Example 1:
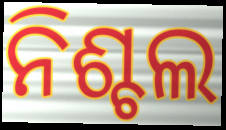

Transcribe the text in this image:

ନିଶ୍ଚଲ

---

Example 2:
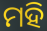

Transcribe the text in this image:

ମହି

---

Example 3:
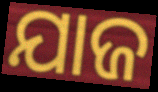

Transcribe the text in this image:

ଯାଜ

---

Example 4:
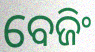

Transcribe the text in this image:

ବେଜିଂ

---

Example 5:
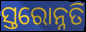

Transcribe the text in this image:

ସ୍ତରୋନ୍ନତି